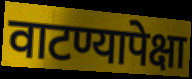
वाटण्यापेक्षा